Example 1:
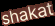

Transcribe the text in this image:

shakat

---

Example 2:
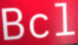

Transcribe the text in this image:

Bcl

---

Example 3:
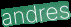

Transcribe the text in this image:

andres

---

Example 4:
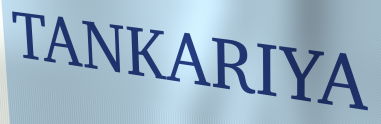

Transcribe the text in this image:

TANKARIYA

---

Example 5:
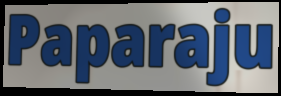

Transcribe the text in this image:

Paparaju